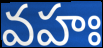
వహః